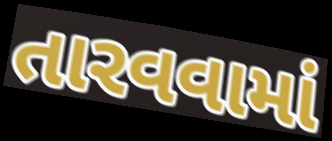
તારવવામાં